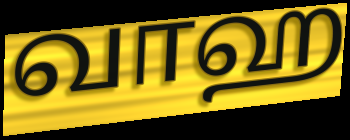
வாஹ